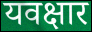
यवक्षार